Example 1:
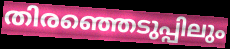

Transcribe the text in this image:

തിരഞ്ഞെടുപ്പിലും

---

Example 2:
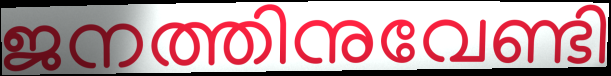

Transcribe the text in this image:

ജനത്തിനുവേണ്ടി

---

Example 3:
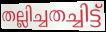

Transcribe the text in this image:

തല്ലിച്ചതച്ചിട്ട്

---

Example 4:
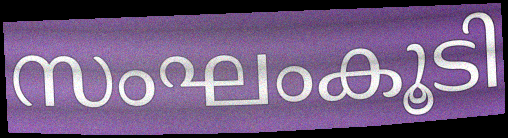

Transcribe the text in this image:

സംഘംകൂടി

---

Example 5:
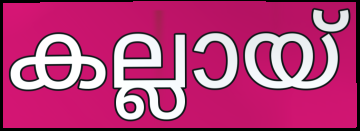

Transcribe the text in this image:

കല്ലായ്